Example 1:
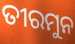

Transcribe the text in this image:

ତୀରମୁନ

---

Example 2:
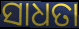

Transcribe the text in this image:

ସାଧତା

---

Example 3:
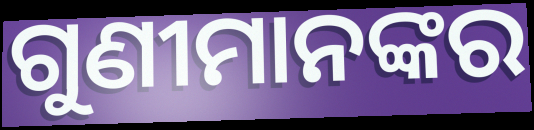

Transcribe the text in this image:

ଗୁଣୀମାନଙ୍କର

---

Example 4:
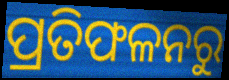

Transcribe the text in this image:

ପ୍ରତିଫଳନରୁ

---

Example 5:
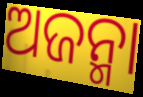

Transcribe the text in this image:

ଅଜନ୍ମା